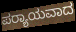
ಪರ‍್ಯಾಯವಾದ